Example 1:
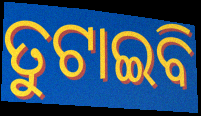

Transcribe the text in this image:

ତୁଟାଇବି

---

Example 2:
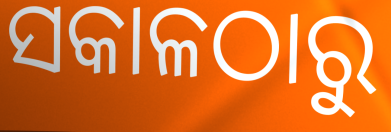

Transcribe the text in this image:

ସକାଳଠାରୁ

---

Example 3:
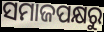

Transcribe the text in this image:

ସମାଜପକ୍ଷରୁ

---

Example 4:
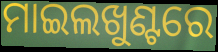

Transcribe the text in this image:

ମାଇଲଖୁଣ୍ଟରେ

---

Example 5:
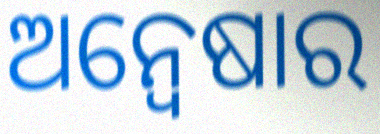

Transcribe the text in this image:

ଅନ୍ବେଷାର